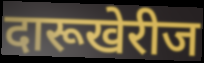
दारूखेरीज